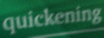
quickening